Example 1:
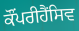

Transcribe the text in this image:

ਕੌਂਪਰੀਹੈਂਸਿਵ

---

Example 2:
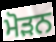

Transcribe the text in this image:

ਮੋੜਨ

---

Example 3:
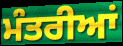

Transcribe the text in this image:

ਮੰਤਰੀਆਂ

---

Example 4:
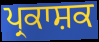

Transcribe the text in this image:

ਪ੍ਰਕਾਸ਼ਕ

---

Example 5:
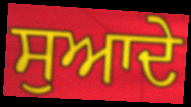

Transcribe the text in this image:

ਸੁਆਦੇ